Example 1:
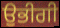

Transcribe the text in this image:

ਉਭੀਗੀ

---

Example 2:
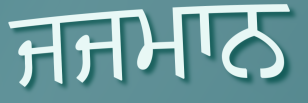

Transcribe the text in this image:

ਜਜਮਾਨ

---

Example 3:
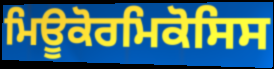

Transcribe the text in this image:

ਮਿਊਕੋਰਮਿਕੋਸਿਸ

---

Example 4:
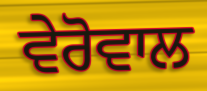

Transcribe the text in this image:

ਵੇਰੋਵਾਲ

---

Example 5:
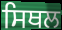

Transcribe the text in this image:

ਸਿਥਲ